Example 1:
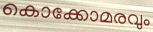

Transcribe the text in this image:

കൊക്കോമരവും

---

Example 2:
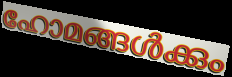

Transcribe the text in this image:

ഹോമങ്ങൾക്കും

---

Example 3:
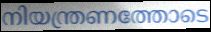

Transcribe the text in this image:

നിയന്ത്രണത്തോടെ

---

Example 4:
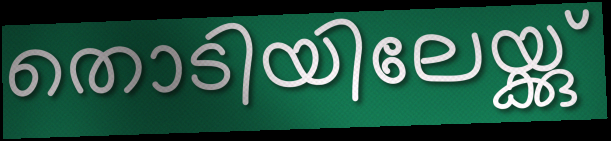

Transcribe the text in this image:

തൊടിയിലേയ്ക്കു്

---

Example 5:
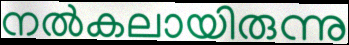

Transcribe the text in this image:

നൽകലായിരുന്നു